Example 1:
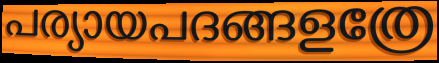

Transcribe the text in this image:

പര്യായപദങ്ങളത്രേ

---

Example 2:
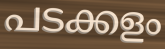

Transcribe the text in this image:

പടക്കളം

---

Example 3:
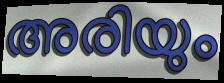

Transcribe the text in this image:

അരിയും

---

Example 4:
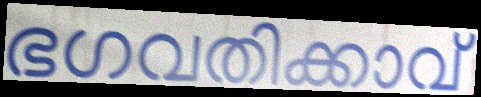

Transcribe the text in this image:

ഭഗവതിക്കാവ്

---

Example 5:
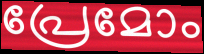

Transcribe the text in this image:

പ്രേമോം